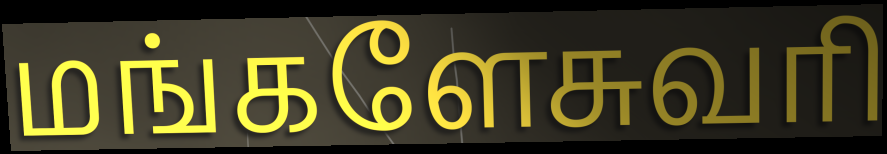
மங்களேசுவரி